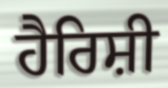
ਹੈਰਿਸ਼ੀ